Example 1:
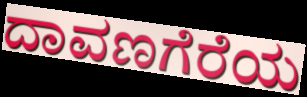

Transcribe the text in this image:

ದಾವಣಗೆರೆಯ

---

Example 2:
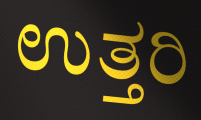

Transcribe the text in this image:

ಉತ್ತರಿ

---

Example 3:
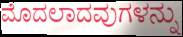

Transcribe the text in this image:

ಮೊದಲಾದವುಗಳನ್ನು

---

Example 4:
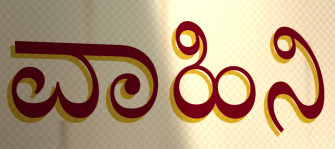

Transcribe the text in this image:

ವಾಹಿನಿ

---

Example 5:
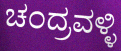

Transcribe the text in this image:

ಚಂದ್ರವಳ್ಳಿ